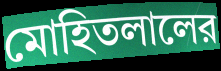
মোহিতলালের